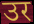
उर